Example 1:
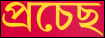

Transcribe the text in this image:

প্ৰচেছ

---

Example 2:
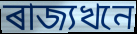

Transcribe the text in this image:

ৰাজ্যখনে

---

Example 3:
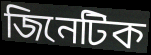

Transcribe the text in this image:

জিনেটিক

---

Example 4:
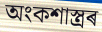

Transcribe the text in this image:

অংকশাস্ত্ৰৰ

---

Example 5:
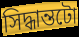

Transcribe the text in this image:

সিদ্ধান্তটো